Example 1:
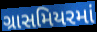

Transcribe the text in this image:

ગ્રાસમિયરમાં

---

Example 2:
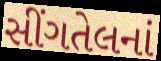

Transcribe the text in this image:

સીંગતેલનાં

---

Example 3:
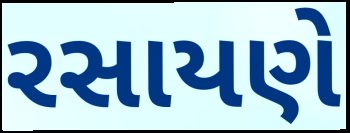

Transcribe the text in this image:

રસાયણે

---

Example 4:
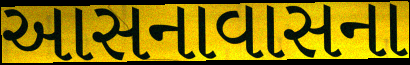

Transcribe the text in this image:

આસનાવાસના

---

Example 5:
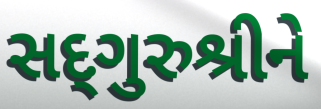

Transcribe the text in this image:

સદ્‌ગુરુશ્રીને